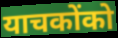
याचकोंको